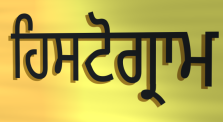
ਹਿਸਟੋਗ੍ਰਾਮ